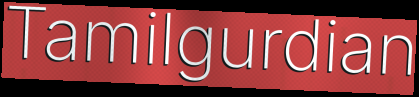
Tamilgurdian